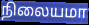
நிலையமா